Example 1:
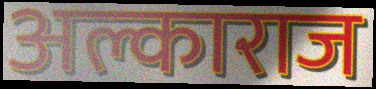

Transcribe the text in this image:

अल्काराज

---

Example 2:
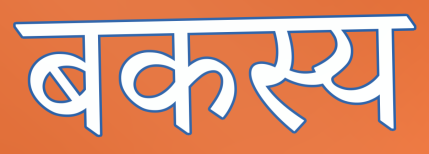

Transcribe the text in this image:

बकस्य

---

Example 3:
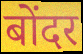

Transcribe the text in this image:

बोंदर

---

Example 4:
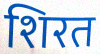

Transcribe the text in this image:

शिरत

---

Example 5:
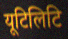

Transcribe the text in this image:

यूटिलिटि